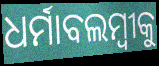
ଧର୍ମାବଲମ୍ବୀକୁ